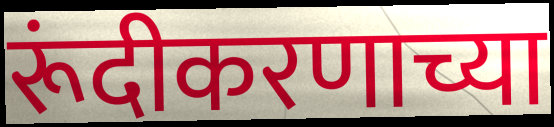
रूंदीकरणाच्या